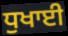
ਧੁਖਾਈ